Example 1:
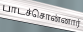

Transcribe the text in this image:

பாடச்சொன்னார்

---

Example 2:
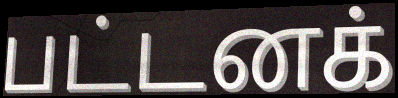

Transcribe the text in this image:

பட்டனக்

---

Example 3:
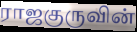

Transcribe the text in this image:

ராஜகுருவின்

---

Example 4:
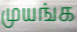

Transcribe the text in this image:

முயங்க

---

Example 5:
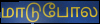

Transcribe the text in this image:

மாடுபோல